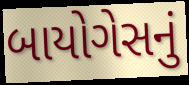
બાયોગેસનું